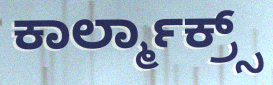
ಕಾರ್ಲ್ಮಾಕ್ರ್ಸ್